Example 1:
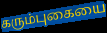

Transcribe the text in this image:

கரும்புகையை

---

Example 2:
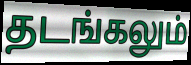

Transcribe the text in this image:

தடங்கலும்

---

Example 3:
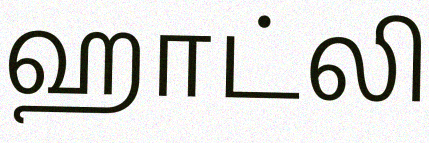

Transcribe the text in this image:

ஹாட்லி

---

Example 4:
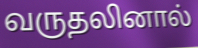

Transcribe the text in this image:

வருதலினால்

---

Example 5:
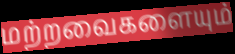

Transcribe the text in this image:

மற்றவைகளையும்